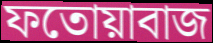
ফতোয়াবাজ